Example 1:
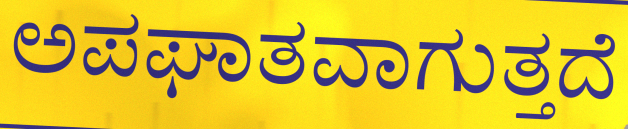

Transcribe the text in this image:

ಅಪಘಾತವಾಗುತ್ತದೆ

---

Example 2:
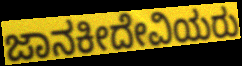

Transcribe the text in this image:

ಜಾನಕೀದೇವಿಯರು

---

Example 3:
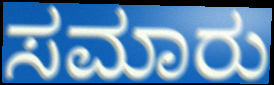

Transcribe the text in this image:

ಸಮಾರು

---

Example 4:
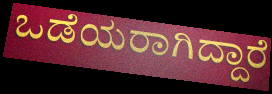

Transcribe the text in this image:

ಒಡೆಯರಾಗಿದ್ದಾರೆ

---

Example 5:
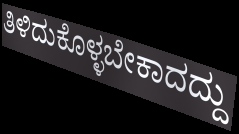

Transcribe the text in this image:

ತಿಳಿದುಕೊಳ್ಳಬೇಕಾದದ್ದು